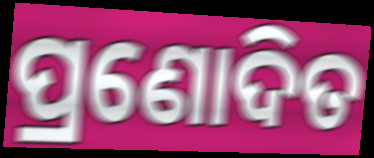
ପ୍ରଣୋଦିତ